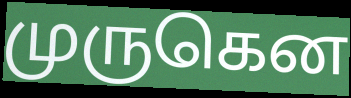
முருகென